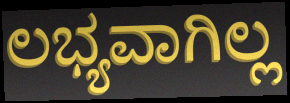
ಲಭ್ಯವಾಗಿಲ್ಲ